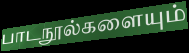
பாடநூல்களையும்